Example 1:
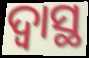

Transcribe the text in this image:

ଦ୍ୱାସ୍ଥ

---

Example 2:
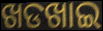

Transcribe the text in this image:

ଖଡଖାଇ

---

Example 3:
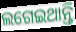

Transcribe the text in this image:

ଲଗେଇଥାନ୍ତି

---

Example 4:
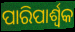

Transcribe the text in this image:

ପାରିପାର୍ଶ୍ଵକ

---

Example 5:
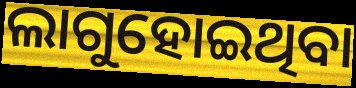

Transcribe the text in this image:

ଲାଗୁହୋଇଥିବା